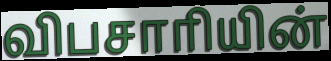
விபசாரியின்